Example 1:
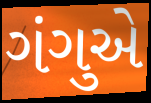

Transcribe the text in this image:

ગંગુએ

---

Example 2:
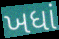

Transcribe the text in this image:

ખધાં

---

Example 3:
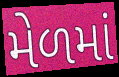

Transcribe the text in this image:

મેળમાં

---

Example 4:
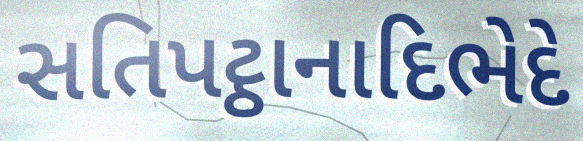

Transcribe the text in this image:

સતિપટ્ઠાનાદિભેદે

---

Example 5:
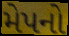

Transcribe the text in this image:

મેપનો